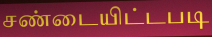
சண்டையிட்டபடி